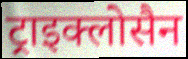
ट्राइक्लोसैन